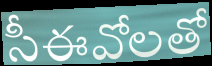
సీఈవోలతో